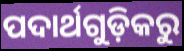
ପଦାର୍ଥଗୁଡ଼ିକରୁ